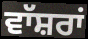
ਵਾੱਸ਼ਰਾਂ